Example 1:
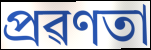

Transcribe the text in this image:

প্ৰৱণতা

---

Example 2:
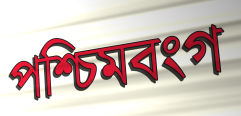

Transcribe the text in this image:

পশ্চিমবংগ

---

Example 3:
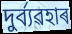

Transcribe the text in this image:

দুৰ্ব্যৱহাৰ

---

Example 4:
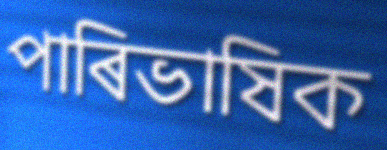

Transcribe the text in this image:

পাৰিভাষিক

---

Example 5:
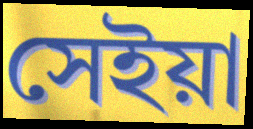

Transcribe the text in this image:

সেইয়া